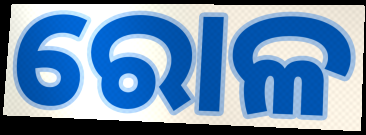
ରୋଳ